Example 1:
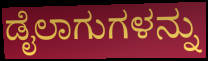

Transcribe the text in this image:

ಡೈಲಾಗುಗಳನ್ನು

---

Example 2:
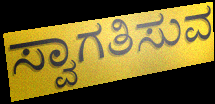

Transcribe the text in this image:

ಸ್ವಾಗತಿಸುವ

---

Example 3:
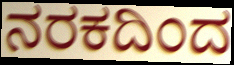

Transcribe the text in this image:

ನರಕದಿಂದ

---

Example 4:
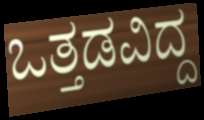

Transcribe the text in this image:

ಒತ್ತಡವಿದ್ದ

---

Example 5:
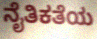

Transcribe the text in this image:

ನೈತಿಕತೆಯ